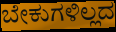
ಬೇಕುಗಳಿಲ್ಲದ